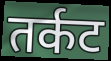
तर्कट